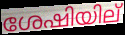
ശേഷിയില്